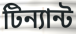
টিন্যান্ট